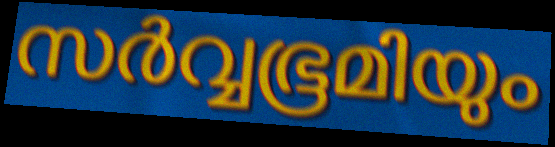
സർവ്വഭൂമിയും